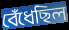
বেঁধেছিল